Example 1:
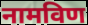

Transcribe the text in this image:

नामविण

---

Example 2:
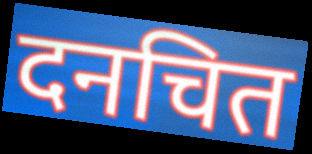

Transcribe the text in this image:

दनचित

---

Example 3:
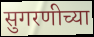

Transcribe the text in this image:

सुगरणीच्या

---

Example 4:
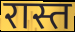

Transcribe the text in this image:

रास्त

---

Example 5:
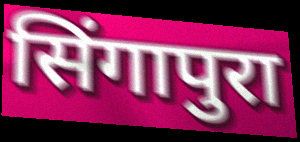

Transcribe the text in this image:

सिंगापुरा